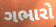
ગભારો